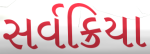
સર્વક્રિયા